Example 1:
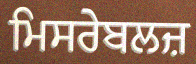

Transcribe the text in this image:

ਮਿਸਰੇਬਲਜ਼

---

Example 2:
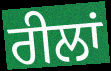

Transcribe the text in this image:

ਰੀਲਾਂ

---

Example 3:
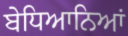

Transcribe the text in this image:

ਬੇਧਿਆਨਿਆਂ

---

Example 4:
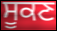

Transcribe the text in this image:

ਸੂਕਣ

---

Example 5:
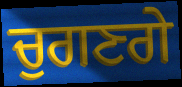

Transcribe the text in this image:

ਚੁਗਣਗੇ